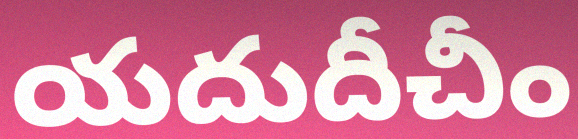
యదుదీచీం